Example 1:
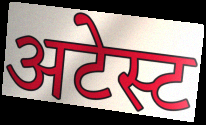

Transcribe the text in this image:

अटेस्ट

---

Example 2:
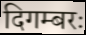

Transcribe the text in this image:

दिगम्बरः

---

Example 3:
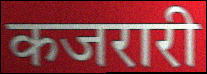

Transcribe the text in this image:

कजरारी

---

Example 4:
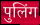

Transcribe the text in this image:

पुलिंग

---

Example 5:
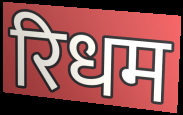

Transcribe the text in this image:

रिधम